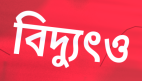
বিদ্যুৎও